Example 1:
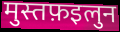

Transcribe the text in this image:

मुस्तफ़इलुन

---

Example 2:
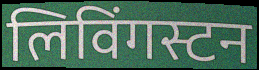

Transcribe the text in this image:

लिविंगस्टन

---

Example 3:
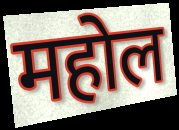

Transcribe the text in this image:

महोल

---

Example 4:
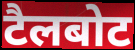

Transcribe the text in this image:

टैलबोट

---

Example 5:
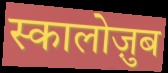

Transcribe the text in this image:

स्कालोज़ुब